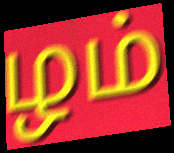
ழம்